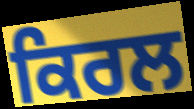
ਕਿਰਲ